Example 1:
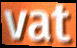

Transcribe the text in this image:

vat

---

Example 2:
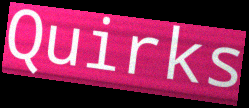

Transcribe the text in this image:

Quirks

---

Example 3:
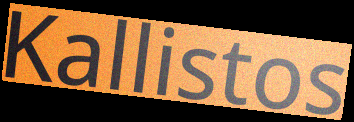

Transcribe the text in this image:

Kallistos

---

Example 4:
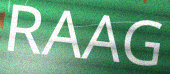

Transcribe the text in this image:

RAAG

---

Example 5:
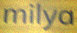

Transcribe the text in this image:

milya